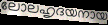
ലോലഹൃദയനായ